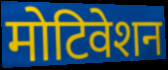
मोटिवेशन